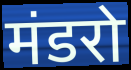
मंडरो